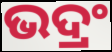
ଭଦ୍ରଂ